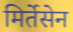
मिर्तेसेन